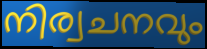
നിര്വചനവും